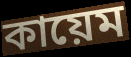
কায়েম